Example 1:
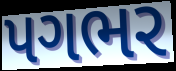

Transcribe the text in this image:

પગભર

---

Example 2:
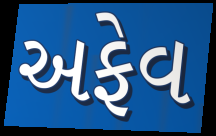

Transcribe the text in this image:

અફેવ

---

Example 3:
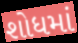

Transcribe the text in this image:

શોધમાં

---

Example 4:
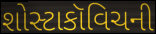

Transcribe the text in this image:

શોસ્ટાકૉવિચની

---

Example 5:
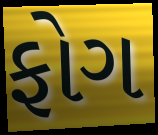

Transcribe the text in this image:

ફોગ